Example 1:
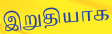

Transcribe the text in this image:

இறுதியாக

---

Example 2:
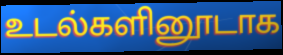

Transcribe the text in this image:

உடல்களினூடாக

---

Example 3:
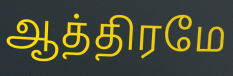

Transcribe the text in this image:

ஆத்திரமே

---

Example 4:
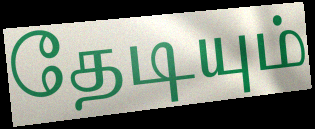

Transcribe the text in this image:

தேடியும்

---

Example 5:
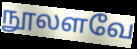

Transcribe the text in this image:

நூலளவே